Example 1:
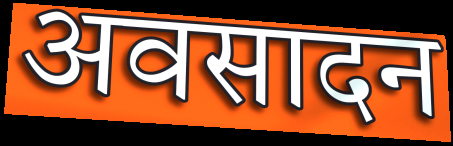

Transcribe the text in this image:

अवसादन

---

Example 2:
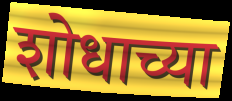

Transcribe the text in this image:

शोधाच्या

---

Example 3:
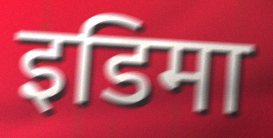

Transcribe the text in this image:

इडिमा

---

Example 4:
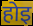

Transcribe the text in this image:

होइ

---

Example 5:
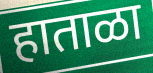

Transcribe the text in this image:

हाताळा